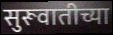
सुरूवातीच्या